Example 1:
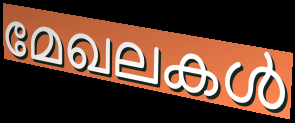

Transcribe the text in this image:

മേഖലകൾ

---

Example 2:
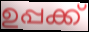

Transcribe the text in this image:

ഉപ്പക്ക്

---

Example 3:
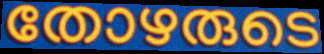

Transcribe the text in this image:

തോഴരുടെ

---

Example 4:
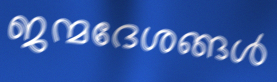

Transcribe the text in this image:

ജന്മദേശങ്ങൾ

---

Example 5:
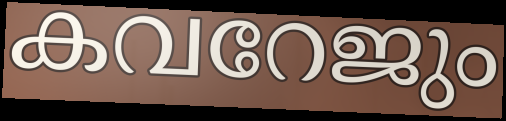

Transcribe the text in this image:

കവറേജും